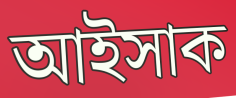
আইসাক